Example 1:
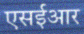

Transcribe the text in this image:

एसईआर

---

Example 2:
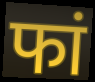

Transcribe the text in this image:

फां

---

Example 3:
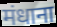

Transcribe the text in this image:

मंधाना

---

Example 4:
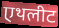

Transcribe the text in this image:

एथलीट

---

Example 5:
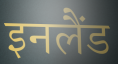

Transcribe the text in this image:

इनलैंड